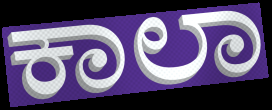
ಕಾಲಾ